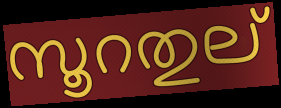
സൂറതുല്